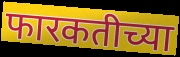
फारकतीच्या